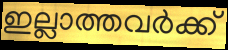
ഇല്ലാത്തവർക്ക്